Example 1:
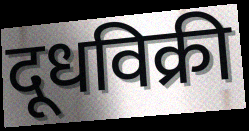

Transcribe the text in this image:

दूधविक्री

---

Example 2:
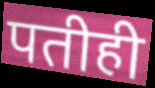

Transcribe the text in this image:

पतीही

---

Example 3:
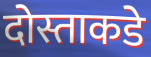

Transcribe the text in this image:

दोस्ताकडे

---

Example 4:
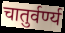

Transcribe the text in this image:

चातुर्वर्ण्य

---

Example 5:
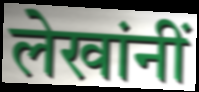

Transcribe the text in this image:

लेखांनीं